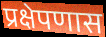
प्रक्षेपणास